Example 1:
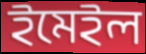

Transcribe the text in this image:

ইমেইল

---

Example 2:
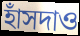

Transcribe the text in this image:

হাঁসদাও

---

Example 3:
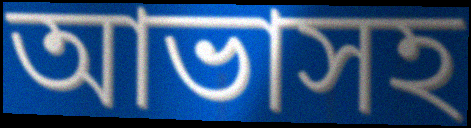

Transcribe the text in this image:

আভাসহ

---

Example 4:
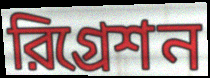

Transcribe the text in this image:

রিগ্রেশন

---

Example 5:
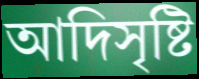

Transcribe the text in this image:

আদিসৃষ্টি